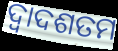
ଦ୍ୱାଦଶତମ